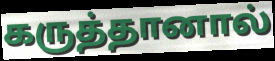
கருத்தானால்